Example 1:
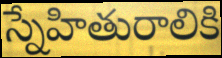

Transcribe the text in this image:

స్నేహితురాలికి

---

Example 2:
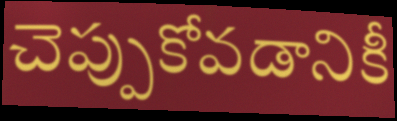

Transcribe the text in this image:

చెప్పుకోవడానికీ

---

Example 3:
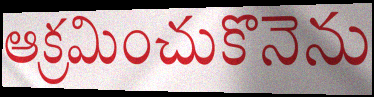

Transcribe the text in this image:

ఆక్రమించుకొనెను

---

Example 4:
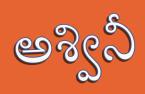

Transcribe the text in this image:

అశ్వినీ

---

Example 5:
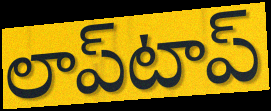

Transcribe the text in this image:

లాప్‌టాప్